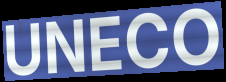
UNECO